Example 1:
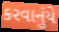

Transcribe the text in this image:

કરવાનુંયે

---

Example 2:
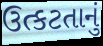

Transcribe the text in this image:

ઉત્કટતાનું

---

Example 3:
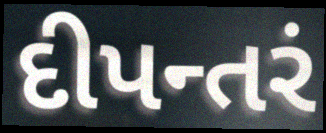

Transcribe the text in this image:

દીપન્તરં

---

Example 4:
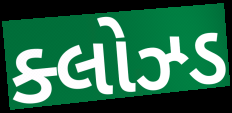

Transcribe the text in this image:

ક્લોઝ્ડ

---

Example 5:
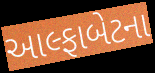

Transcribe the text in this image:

આલ્ફાબેટના